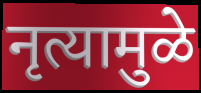
नृत्यामुळे